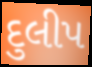
દુલીપ